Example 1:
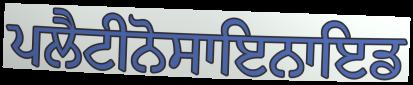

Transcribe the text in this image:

ਪਲੈਟੀਨੋਸਾਇਨਾਇਡ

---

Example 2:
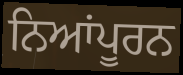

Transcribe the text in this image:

ਨਿਆਂਪੂਰਨ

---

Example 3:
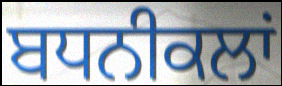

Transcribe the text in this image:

ਬਧਨੀਕਲਾਂ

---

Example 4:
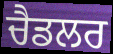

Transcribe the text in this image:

ਚੈਡਲਰ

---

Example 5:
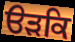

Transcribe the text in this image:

ੳੜਕਿ